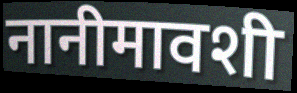
नानीमावशी